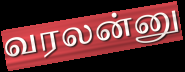
வரலன்னு